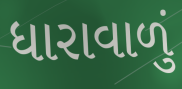
ધારાવાળું